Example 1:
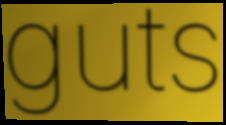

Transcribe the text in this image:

guts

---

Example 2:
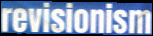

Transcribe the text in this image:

revisionism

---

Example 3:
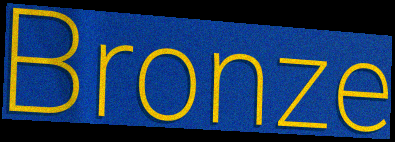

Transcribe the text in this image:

Bronze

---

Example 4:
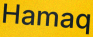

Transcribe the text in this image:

Hamaq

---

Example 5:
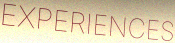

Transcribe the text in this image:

EXPERIENCES